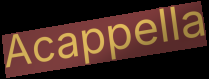
Acappella